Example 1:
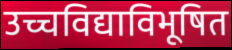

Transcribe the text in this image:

उच्चविद्याविभूषित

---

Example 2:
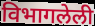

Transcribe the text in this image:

विभागलेली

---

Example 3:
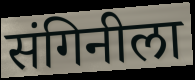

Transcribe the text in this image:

संगिनीला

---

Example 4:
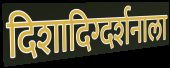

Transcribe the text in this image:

दिशादिग्दर्शनाला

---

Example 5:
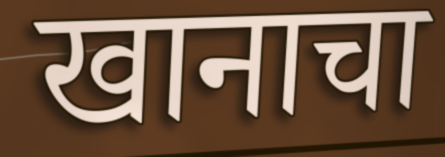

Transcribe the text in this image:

खानाचा